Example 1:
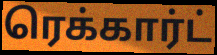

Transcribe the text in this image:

ரெக்கார்ட்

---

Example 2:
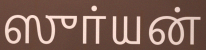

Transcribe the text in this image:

ஸுர்யன்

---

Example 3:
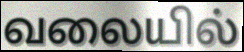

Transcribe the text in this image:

வலையில்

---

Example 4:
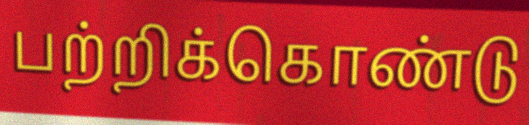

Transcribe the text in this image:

பற்றிக்கொண்டு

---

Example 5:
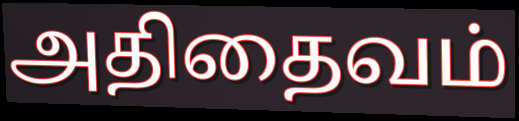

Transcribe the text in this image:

அதிதைவம்